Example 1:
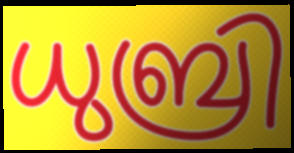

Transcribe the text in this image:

ധുബ്രി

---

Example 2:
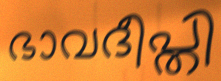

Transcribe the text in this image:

ഭാവദീപ്തി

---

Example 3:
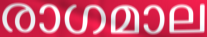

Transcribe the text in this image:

രാഗമാല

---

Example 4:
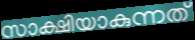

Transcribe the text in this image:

സാക്ഷിയാകുന്നത്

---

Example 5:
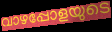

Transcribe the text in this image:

വാഴപ്പോളയുടെ